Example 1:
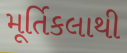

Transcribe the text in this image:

મૂર્તિકલાથી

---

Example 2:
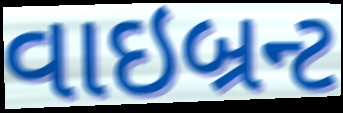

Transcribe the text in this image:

વાઇબ્રન્ટ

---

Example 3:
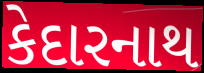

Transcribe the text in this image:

કેદારનાથ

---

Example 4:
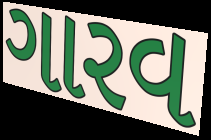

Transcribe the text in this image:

ગારવ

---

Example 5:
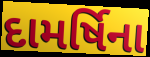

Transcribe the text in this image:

દામર્ષિના